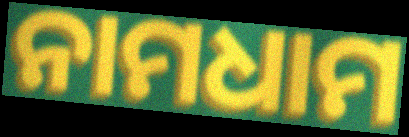
ନାମଧାମ